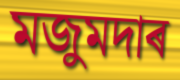
মজুমদাৰ